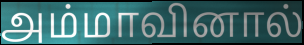
அம்மாவினால்